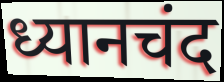
ध्यानचंद